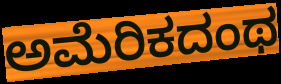
ಅಮೆರಿಕದಂಥ